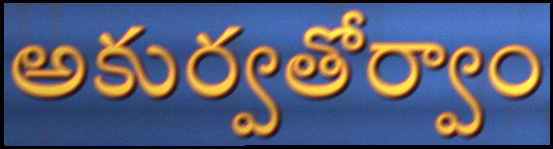
అకుర్వతోర్వాం